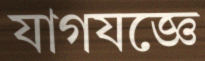
যাগযজ্ঞে